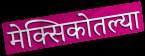
मेक्सिकोतल्या